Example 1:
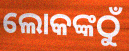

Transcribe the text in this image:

ଲୋକଙ୍କଠୁଁ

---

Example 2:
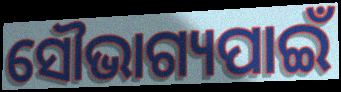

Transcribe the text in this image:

ସୌଭାଗ୍ୟପାଇଁ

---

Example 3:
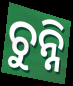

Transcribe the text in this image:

ଚୁନ୍ନି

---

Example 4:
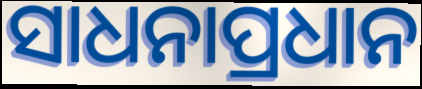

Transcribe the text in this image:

ସାଧନାପ୍ରଧାନ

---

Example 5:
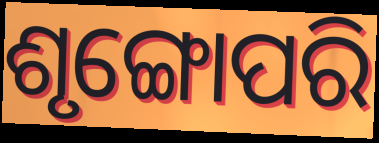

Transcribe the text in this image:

ଶୃଙ୍ଗୋପରି